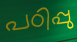
പഠിപ്പു